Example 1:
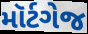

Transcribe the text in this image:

મૉર્ટગેજ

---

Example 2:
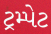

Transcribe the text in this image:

ટ્રમ્પેટ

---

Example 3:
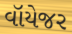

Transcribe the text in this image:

વૉયેજર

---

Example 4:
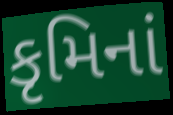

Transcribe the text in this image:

કૃમિનાં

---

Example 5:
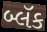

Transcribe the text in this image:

બ્લૅક